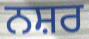
ਨਸ਼ਰ